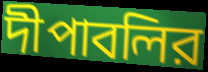
দীপাবলির